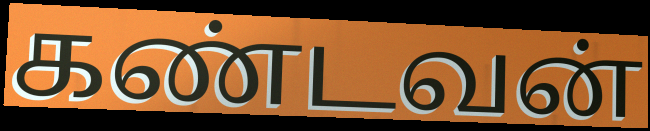
கண்டவன்